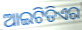
ଆଇଟିଡିଏର